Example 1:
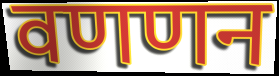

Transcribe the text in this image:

वणणन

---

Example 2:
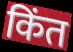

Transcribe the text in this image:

किंत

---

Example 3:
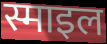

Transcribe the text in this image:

स्माइल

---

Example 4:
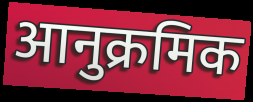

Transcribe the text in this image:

आनुक्रमिक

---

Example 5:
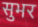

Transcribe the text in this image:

सुभर